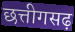
छत्तीगसढ़